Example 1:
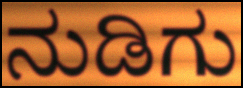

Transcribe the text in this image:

ನುಡಿಗು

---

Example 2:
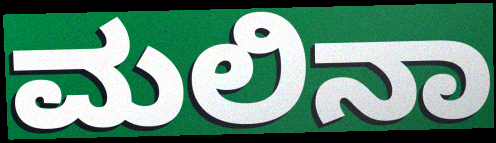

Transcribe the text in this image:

ಮಲಿನಾ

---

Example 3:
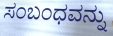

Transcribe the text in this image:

ಸಂಬಂಧವನ್ನು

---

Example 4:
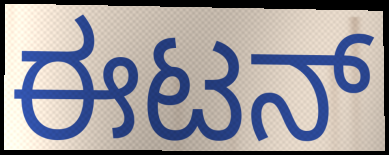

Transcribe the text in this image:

ಈಟನ್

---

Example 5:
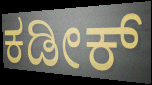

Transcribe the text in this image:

ಕಡೀಕ್